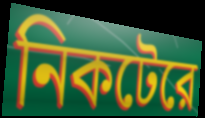
নিকটেরে